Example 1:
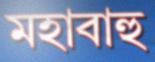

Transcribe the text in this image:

মহাবাহু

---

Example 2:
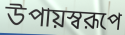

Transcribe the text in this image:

উপায়স্বরূপে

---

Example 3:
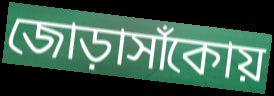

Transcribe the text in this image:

জোড়াসাঁকোয়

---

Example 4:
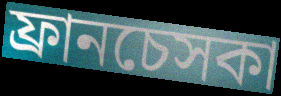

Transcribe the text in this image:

ফ্রানচেসকা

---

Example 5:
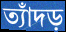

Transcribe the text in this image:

ত্যাঁদড়